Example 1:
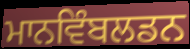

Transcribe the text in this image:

ਮਾਨਵਿੰਬਲਡਨ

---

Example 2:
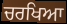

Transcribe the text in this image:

ਚਰਖਿਆ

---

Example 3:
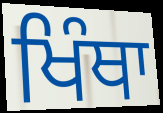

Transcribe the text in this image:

ਖਿੰਥਾ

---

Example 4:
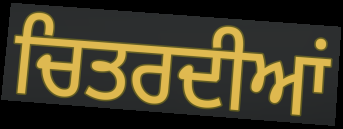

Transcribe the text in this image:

ਚਿਤਰਦੀਆਂ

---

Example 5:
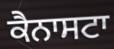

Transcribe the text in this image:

ਕੈਨਾਸਟਾ